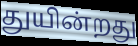
துயின்றது